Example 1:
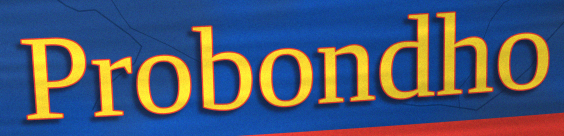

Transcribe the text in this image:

Probondho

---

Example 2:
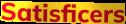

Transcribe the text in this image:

Satisficers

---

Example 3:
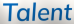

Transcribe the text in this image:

Talent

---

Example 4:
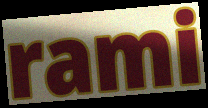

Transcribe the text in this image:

rami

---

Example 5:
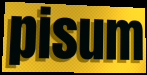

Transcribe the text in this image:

pisum